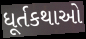
ધૂર્તકથાઓ